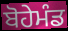
ਬੋਹੇਮੰਡ